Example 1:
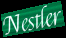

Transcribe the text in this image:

Nestler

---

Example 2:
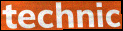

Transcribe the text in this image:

technic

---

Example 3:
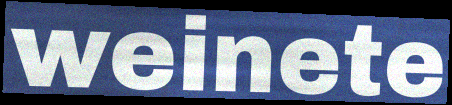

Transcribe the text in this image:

weinete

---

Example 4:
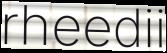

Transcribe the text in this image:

rheedii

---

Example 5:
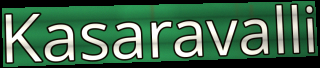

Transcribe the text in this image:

Kasaravalli